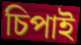
চিপাই